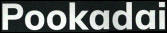
Pookadai